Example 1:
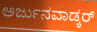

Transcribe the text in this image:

ಅರ್ಜುನವಾಡ್ಕರ್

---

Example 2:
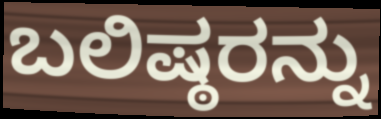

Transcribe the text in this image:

ಬಲಿಷ್ಠರನ್ನು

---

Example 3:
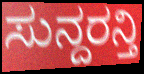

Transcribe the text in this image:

ಸುನ್ದರನ್ತಿ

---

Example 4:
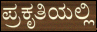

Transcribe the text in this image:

ಪ್ರಕೃತಿಯಲ್ಲಿ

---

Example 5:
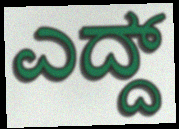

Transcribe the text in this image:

ಎದ್ದ್